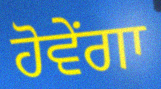
ਹੋਵੇਂਗਾ